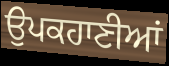
ਉਪਕਹਾਣੀਆਂ